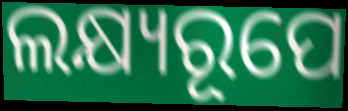
ଲକ୍ଷ୍ୟରୂପେ